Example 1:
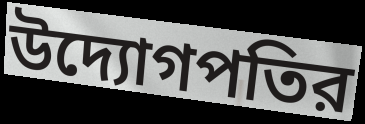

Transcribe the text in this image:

উদ্যোগপতির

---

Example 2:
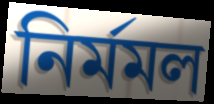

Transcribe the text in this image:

নির্মমল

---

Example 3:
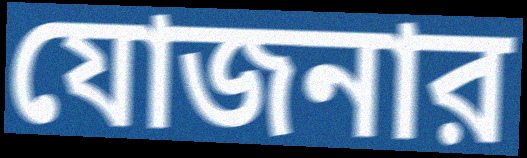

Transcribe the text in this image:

যোজনার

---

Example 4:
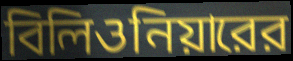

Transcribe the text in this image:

বিলিওনিয়ারের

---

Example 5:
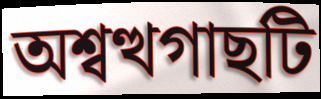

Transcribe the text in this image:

অশ্বত্থগাছটি